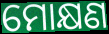
ମୋକ୍ଷଣ